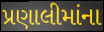
પ્રણાલીમાંના